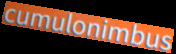
cumulonimbus